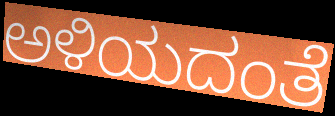
ಅಳಿಯದಂತೆ